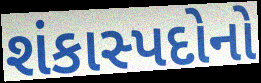
શંકાસ્પદોનો